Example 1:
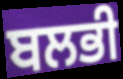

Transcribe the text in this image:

ਬਲਭੀ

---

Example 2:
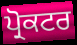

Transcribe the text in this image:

ਪ੍ਰੋਕਟਰ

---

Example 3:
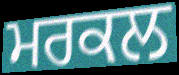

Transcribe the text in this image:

ਮਰਕਲ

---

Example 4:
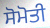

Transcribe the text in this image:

ਸੋਮੋਤੀ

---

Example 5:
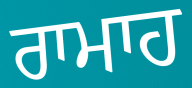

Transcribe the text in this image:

ਰਾਮਾਹ